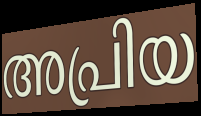
അപ്രിയ